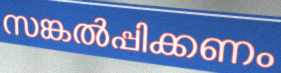
സങ്കൽപ്പിക്കണം